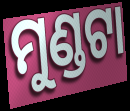
ମୁଣ୍ଡଟା